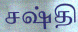
சஷ்தி